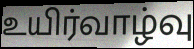
உயிர்வாழ்வு